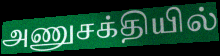
அணுசக்தியில்